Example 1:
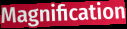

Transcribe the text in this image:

Magnification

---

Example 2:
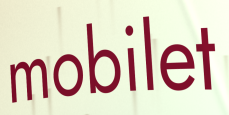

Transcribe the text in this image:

mobilet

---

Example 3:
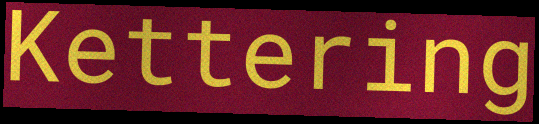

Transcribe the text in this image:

Kettering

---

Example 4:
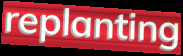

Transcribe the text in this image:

replanting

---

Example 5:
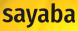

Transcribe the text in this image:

sayaba